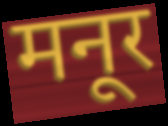
मनूर